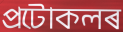
প্ৰটোকলৰ